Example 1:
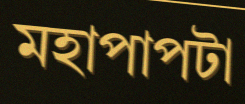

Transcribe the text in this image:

মহাপাপটা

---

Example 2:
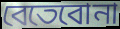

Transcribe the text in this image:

বেতেবোনা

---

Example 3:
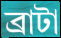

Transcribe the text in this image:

ব্রাটা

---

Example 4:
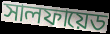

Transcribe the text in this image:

সালফায়েড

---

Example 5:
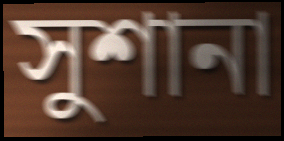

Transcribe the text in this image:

সুশানা